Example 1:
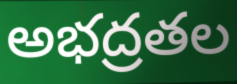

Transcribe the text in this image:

అభద్రతల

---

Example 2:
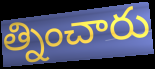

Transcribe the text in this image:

త్నించారు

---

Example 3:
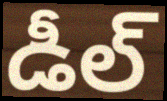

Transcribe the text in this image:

డీల్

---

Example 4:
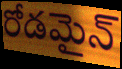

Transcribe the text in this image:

రోడమైన్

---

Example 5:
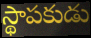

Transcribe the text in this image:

స్థాపకుడు